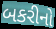
બકરીનો